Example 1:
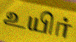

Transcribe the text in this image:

உயிர்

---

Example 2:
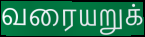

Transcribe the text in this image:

வரையறுக்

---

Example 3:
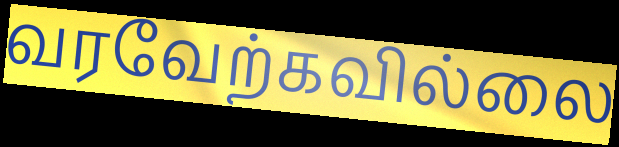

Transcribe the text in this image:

வரவேற்கவில்லை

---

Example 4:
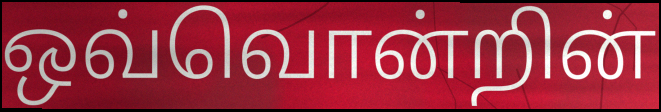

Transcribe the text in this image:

ஒவ்வொன்றின்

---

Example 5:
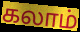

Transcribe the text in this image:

கலாம்